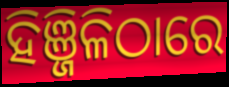
ହିଞ୍ଜିଳିଠାରେ